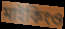
মাইকিংও